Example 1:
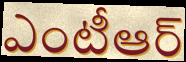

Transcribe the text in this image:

ఎంటీఆర్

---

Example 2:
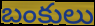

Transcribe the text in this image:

బంకులు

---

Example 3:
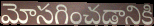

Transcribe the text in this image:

మోసగించడానికి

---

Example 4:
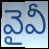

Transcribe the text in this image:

వైవీ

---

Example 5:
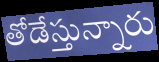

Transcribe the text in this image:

తోడేస్తున్నారు